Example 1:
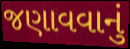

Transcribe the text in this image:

જણાવવાનું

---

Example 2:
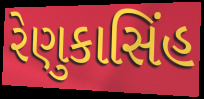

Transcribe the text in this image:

રેણુકાસિંહ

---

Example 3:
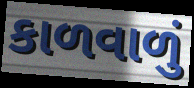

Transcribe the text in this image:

કાળવાળું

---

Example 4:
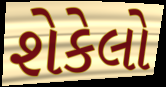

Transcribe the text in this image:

શેકેલો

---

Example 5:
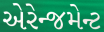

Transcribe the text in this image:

એરેન્જમેન્ટ